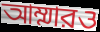
আম্মারও